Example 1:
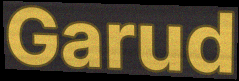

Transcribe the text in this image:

Garud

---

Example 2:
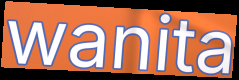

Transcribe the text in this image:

wanita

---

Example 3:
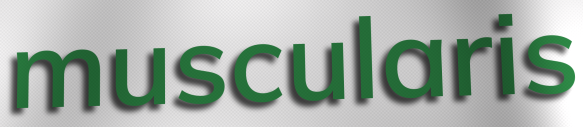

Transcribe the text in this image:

muscularis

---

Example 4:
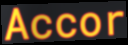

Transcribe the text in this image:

Accor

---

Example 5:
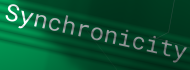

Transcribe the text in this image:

Synchronicity